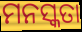
ମନସ୍କତା